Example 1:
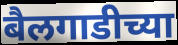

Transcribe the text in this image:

बैलगाडीच्या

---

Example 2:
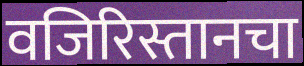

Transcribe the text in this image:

वजिरिस्तानचा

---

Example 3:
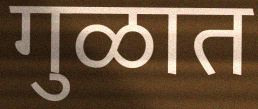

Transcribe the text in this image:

गुळात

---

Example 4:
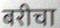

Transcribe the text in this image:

बरीचा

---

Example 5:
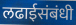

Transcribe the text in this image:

लढाईसंबंधी